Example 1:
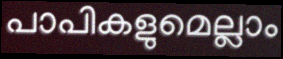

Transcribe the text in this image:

പാപികളുമെല്ലാം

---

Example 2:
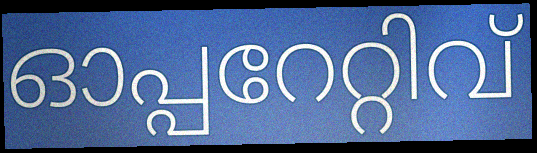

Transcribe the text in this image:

ഓപ്പറേറ്റിവ്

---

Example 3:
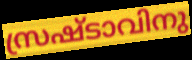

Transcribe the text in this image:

സ്രഷ്ടാവിനു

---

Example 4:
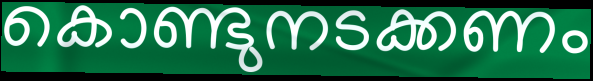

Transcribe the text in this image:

കൊണ്ടുനടക്കണം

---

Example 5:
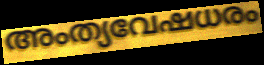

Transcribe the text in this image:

അംത്യവേഷധരം